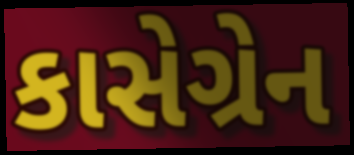
કાસેગ્રેન